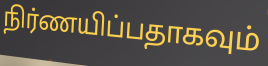
நிர்ணயிப்பதாகவும்